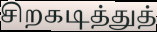
சிறகடித்துத்